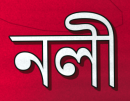
নলী